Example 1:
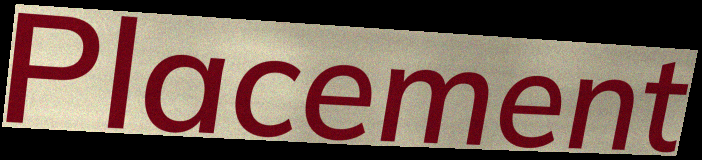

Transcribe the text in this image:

Placement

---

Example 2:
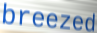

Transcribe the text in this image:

breezed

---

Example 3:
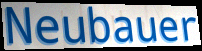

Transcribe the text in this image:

Neubauer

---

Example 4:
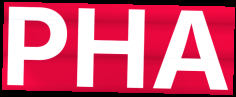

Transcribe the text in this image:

PHA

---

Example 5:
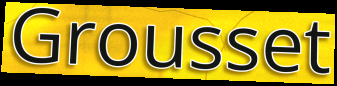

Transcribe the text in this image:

Grousset